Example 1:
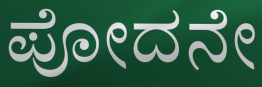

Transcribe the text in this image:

ಪೋದನೇ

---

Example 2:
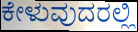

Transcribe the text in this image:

ಕೇಳುವುದರಲ್ಲಿ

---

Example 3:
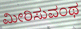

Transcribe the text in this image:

ಮೀರಿಸುವಂಥ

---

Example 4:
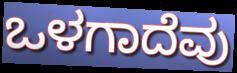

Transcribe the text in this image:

ಒಳಗಾದೆವು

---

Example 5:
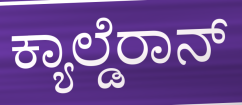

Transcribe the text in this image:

ಕ್ಯಾಲ್ಡೆರಾನ್